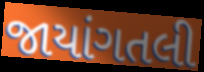
જાયાંગતલી